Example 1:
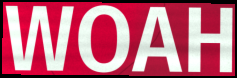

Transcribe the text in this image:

WOAH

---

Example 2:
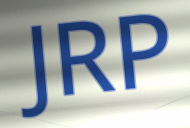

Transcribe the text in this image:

JRP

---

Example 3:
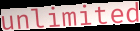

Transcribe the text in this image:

unlimited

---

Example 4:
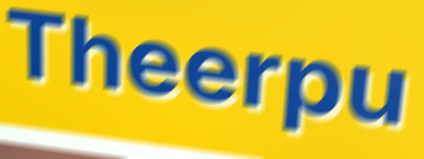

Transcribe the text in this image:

Theerpu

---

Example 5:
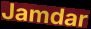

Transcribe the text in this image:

Jamdar